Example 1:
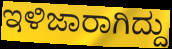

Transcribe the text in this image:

ಇಳಿಜಾರಾಗಿದ್ದು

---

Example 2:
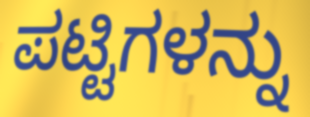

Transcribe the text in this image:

ಪಟ್ಟಿಗಳನ್ನು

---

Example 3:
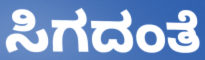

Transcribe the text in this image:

ಸಿಗದಂತೆ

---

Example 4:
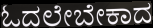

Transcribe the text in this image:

ಓದಲೇಬೇಕಾದ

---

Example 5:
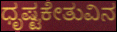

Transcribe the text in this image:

ಧೃಷ್ಟಕೇತುವಿನ